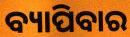
ବ୍ୟାପିବାର